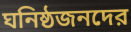
ঘনিষ্ঠজনদের